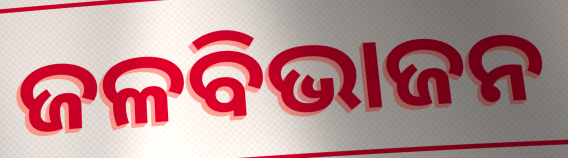
ଜଳବିଭାଜନ